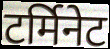
टर्मिनेट